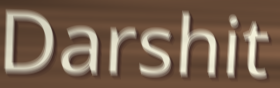
Darshit